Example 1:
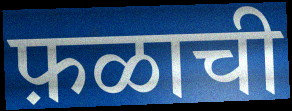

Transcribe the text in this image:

फ़ळाची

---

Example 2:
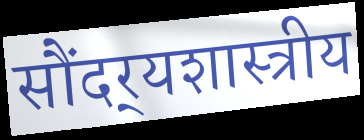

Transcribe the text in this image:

सौंदर्यशास्त्रीय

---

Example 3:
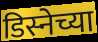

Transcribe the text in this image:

डिस्नेच्या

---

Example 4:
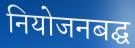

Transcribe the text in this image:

नियोजनबद्घ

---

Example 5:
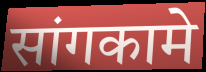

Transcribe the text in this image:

सांगकामे